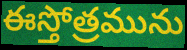
ఈస్తోత్రమును